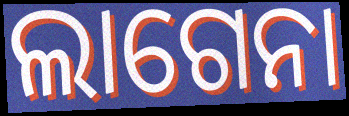
ଲାଗେନା